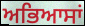
ਅਭਿਆਸਾਂ